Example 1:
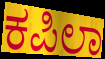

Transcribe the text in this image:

ಕಪಿಲಾ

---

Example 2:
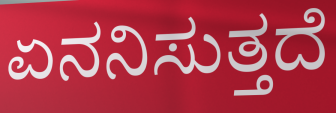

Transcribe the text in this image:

ಏನನಿಸುತ್ತದೆ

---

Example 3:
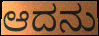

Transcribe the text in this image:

ಆದನು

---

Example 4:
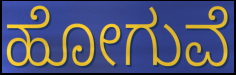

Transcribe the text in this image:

ಹೋಗುವೆ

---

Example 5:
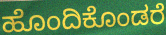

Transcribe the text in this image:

ಹೊಂದಿಕೊಂಡರೆ